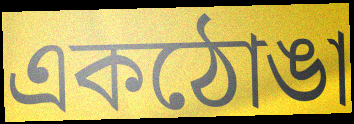
একঠোঙা